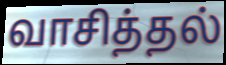
வாசித்தல்